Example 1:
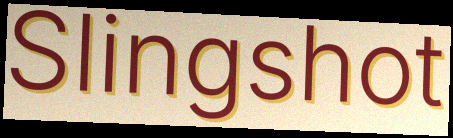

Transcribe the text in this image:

Slingshot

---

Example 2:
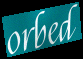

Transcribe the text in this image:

orbed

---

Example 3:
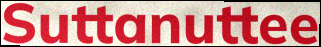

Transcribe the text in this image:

Suttanuttee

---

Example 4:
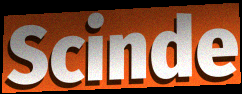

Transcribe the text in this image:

Scinde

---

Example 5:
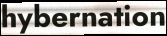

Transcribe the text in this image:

hybernation